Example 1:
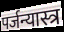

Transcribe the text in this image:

पर्जन्यास्त्र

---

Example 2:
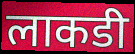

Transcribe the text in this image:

लाकडी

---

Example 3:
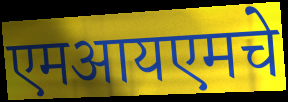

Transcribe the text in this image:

एमआयएमचे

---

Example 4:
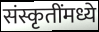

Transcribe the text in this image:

संस्कृतींमध्ये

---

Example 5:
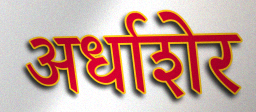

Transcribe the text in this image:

अर्धाशेर